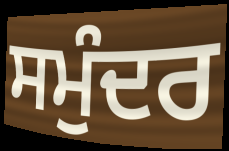
ਸਮੁੰਦਰ